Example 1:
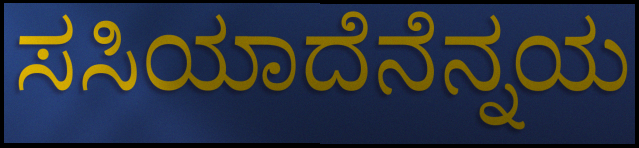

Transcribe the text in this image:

ಸಸಿಯಾದೆನೆನ್ನಯ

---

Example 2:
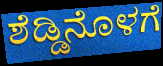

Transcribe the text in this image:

ಶೆಡ್ಡಿನೊಳಗೆ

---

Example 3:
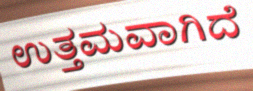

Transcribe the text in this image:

ಉತ್ತಮವಾಗಿದೆ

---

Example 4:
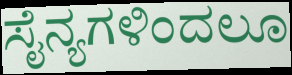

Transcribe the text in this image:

ಸೈನ್ಯಗಳಿಂದಲೂ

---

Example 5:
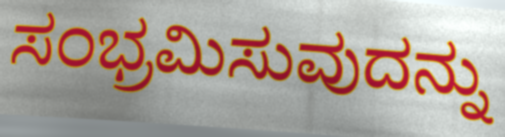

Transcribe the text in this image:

ಸಂಭ್ರಮಿಸುವುದನ್ನು